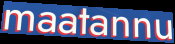
maatannu